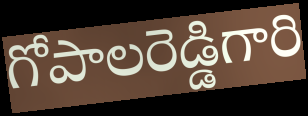
గోపాలరెడ్డిగారి